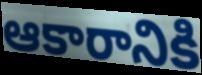
ఆకారానికి